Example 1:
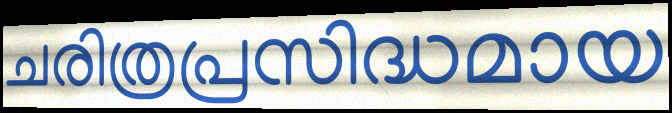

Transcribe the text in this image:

ചരിത്രപ്രസിദ്ധമായ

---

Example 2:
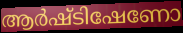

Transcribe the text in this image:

ആർഷ്ടിഷേണോ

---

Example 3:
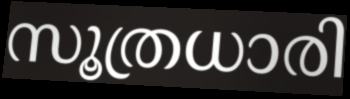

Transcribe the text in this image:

സൂത്രധാരി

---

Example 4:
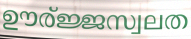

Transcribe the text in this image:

ഊര്ജ്ജസ്വലത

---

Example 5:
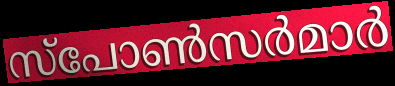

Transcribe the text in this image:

സ്പോൺസർമാർ